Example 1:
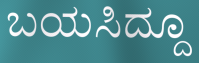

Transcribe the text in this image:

ಬಯಸಿದ್ದೂ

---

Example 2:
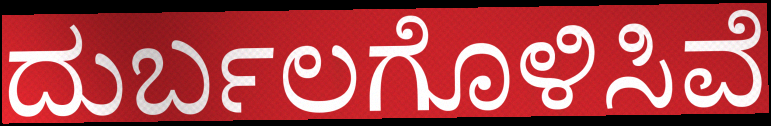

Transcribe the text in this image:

ದುರ್ಬಲಗೊಳಿಸಿವೆ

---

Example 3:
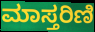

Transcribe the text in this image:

ಮಾಸ್ತರಿಣಿ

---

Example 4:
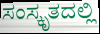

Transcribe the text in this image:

ಸಂಸ್ಕೃತದಲ್ಲಿ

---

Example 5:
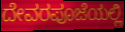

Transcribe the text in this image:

ದೇವರಪೂಜೆಯಲ್ಲಿ